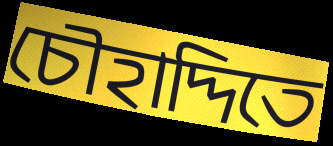
চৌহাদ্দিতে